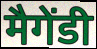
मैगेंडी